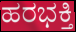
ಹರಭಕ್ತಿ